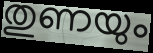
തുണയും